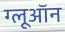
ग्लूऑन